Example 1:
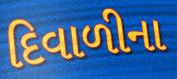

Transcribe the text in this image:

દિવાળીના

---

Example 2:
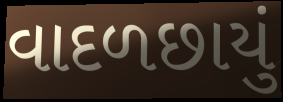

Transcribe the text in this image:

વાદળછાયું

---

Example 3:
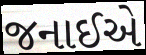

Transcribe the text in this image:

જનાઈએ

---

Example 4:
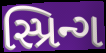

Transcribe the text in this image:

સ્પ્રિન્ગ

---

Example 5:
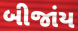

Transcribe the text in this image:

બીજાંય